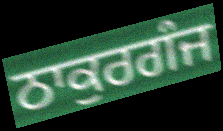
ਠਾਕੁਰਗੰਜ